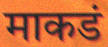
माकडं